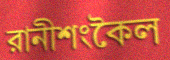
রানীশংকৈল